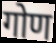
गोण